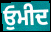
ਓੁਮੀਦ